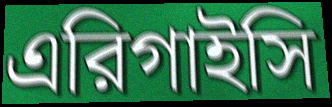
এরিগাইসি